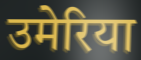
उमेरिया